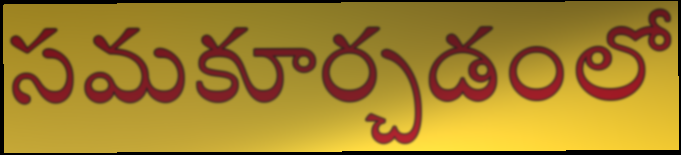
సమకూర్చడంలో